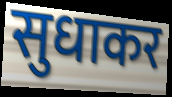
सुधाकर